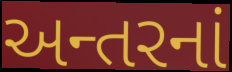
અન્તરનાં